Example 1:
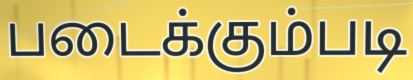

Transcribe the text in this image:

படைக்கும்படி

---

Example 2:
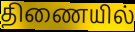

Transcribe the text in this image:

திணையில்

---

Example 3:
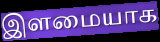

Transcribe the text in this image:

இளமையாக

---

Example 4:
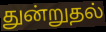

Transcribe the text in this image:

துன்றுதல்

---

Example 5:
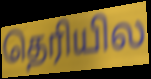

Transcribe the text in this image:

தெரியில